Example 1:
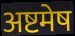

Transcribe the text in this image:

अष्टमेष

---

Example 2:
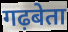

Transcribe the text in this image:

गढ़बेता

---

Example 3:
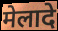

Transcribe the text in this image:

मेलादे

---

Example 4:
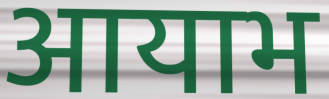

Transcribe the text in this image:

आयाभ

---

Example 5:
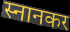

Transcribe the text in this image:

स्नानकर